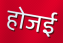
होजई